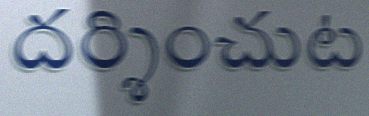
దర్శించుట